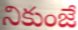
నికుంజే